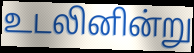
உடலினின்று